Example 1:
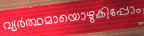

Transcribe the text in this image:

വ്യർത്ഥമായൊഴുകിപ്പോം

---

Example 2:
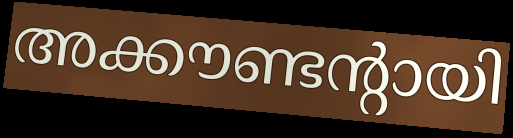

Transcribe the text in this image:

അക്കൗണ്ടന്റായി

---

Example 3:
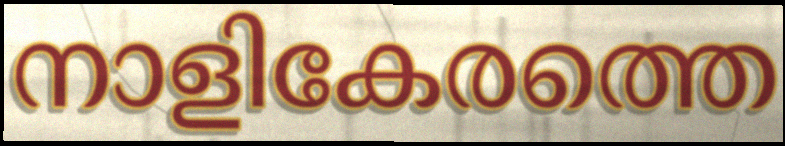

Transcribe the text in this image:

നാളികേരത്തെ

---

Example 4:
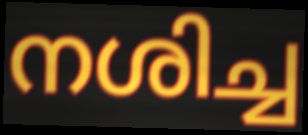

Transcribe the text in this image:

നശിച്ച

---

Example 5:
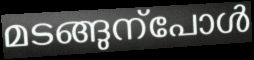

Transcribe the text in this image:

മടങ്ങുന്പോൾ